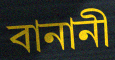
বানানী